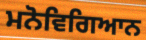
ਮਨੋਵਿਗਿਆਨ